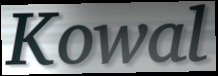
Kowal